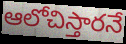
ఆలోచిస్తారనే